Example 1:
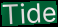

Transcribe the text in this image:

Tide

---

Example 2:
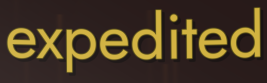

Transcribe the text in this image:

expedited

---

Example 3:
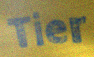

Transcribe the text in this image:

Tier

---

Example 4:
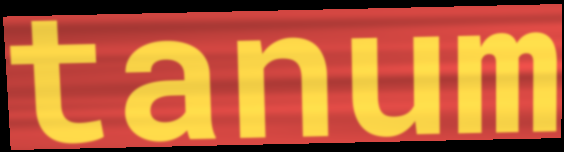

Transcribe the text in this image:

tanum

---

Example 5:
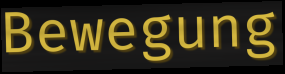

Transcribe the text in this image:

Bewegung